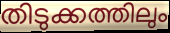
തിടുക്കത്തിലും